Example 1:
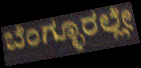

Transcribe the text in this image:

ಬೆಂಗ್ಳೂರಲ್ಲೇ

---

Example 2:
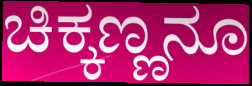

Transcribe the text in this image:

ಚಿಕ್ಕಣ್ಣನೂ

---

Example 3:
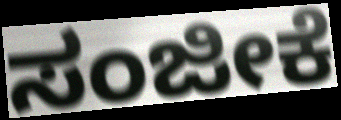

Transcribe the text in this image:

ಸಂಜೀಕೆ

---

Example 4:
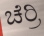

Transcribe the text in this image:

ಚೆರ‍್ರಿ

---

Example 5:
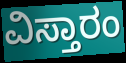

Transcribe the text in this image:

ವಿಸ್ತಾರಂ